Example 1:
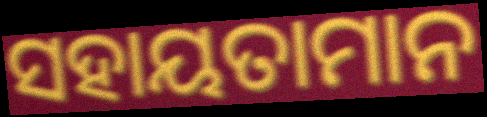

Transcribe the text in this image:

ସହାୟତାମାନ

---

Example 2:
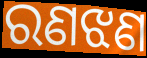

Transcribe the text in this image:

ରଣଝଣ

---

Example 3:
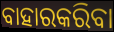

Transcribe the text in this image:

ବାହାରକରିବା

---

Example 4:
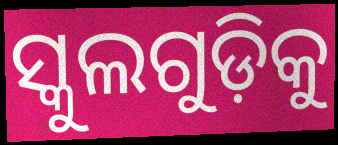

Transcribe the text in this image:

ସ୍କୁଲଗୁଡ଼ିକୁ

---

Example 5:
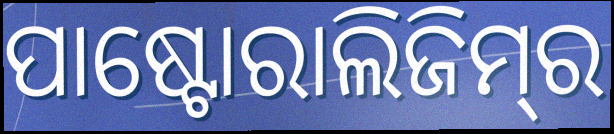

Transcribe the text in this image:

ପାଷ୍ଟୋରାଲିଜିମ୍‌ର